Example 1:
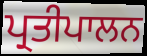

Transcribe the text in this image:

ਪ੍ਰਤੀਪਾਲਨ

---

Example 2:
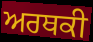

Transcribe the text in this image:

ਅਰਥਕੀ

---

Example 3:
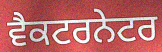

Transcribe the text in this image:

ਵੈਕਟਰਨੇਟਰ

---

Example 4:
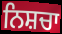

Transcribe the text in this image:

ਨਿਸ਼ਚਾ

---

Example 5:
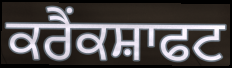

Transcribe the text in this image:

ਕਰੈਂਕਸ਼ਾਫਟ